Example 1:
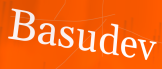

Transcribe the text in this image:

Basudev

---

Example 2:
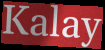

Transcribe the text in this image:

Kalay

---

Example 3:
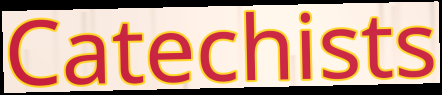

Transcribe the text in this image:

Catechists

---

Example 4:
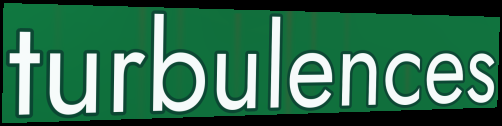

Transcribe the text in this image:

turbulences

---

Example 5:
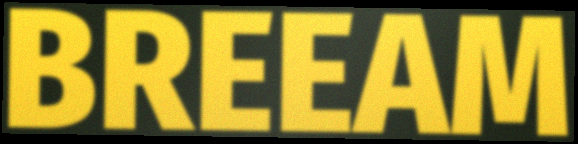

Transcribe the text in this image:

BREEAM